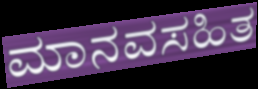
ಮಾನವಸಹಿತ